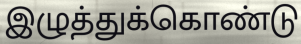
இழுத்துக்கொண்டு